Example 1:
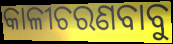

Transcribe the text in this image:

କାଳୀଚରଣବାବୁ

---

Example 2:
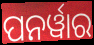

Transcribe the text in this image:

ପନର୍ୱାର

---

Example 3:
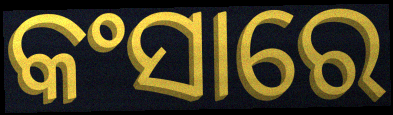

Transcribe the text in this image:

କଂସାରେ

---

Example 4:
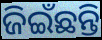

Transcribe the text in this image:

ଜିଇଁଛନ୍ତି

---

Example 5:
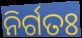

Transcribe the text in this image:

ନିର୍ଗତଃ